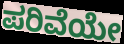
ಪರಿವೆಯೇ